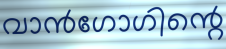
വാൻഗോഗിന്റെ